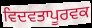
ਵਿਦਵਤਾਪੂਰਵਕ